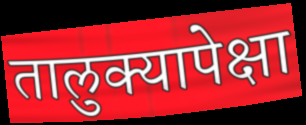
तालुक्यापेक्षा